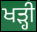
ਖੜ੍ਹੀ